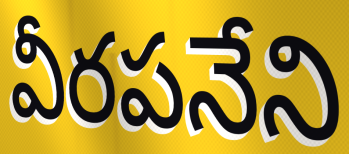
వీరపనేని